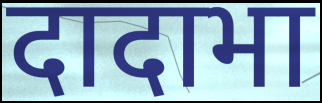
दादाभा